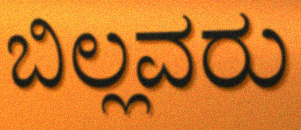
ಬಿಲ್ಲವರು